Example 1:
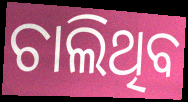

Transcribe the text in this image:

ଚାଲିଥିବ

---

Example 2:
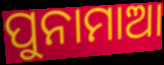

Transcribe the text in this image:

ପୁନାମାଆ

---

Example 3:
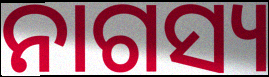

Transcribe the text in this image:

ନାଗସ୍ୟ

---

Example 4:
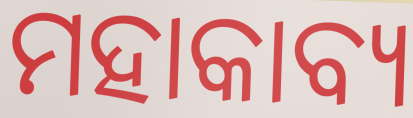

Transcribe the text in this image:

ମହାକାବ୍ୟ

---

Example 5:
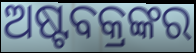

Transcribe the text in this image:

ଅଷ୍ଟବକ୍ରଙ୍କର